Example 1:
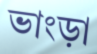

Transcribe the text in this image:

ভাংড়া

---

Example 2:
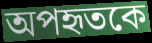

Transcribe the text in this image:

অপহৃতকে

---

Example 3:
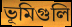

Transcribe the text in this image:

ভূমিগুলি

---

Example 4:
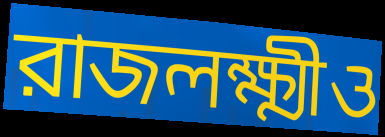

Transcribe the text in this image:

রাজলক্ষ্মীও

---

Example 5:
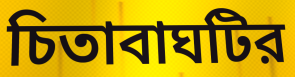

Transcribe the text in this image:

চিতাবাঘটির